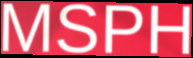
MSPH